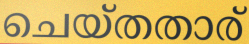
ചെയ്തതാര്